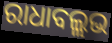
ରାଧାବଲ୍ଲଭ